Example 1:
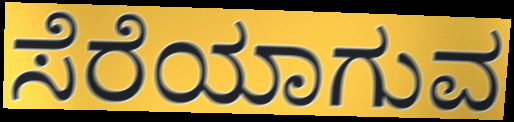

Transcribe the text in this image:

ಸೆರೆಯಾಗುವ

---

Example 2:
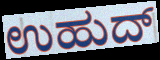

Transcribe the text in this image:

ಉಹುದ್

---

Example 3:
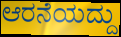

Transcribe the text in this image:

ಆರನೆಯದ್ದು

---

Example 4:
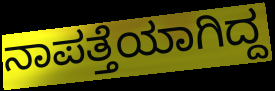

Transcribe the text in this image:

ನಾಪತ್ತೆಯಾಗಿದ್ದ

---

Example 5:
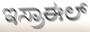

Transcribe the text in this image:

ಇಸ್ರಾಈಲ್